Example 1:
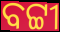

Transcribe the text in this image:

ବଟ୍ଟୀ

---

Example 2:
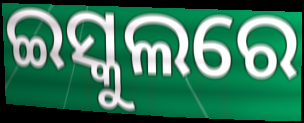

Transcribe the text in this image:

ଇସ୍କୁଲରେ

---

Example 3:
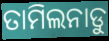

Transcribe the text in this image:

ତାମିଲନାଡୁ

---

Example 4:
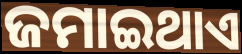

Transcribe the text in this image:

ଜମାଇଥାଏ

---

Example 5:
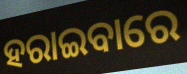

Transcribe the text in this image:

ହରାଇବାରେ